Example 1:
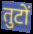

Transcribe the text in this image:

तुटों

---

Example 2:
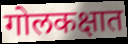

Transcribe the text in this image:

गोलकक्षात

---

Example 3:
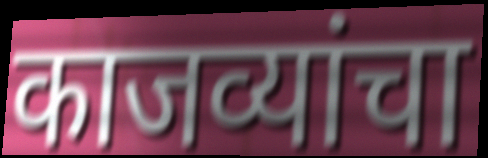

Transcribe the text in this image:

काजव्यांचा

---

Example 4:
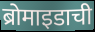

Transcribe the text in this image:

ब्रोमाइडाची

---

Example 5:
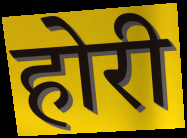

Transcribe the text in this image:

होरी